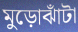
মুড়োঝাঁটা